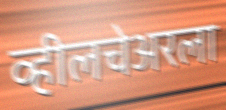
व्हीलचेअरला